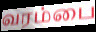
வரம்பை